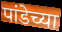
पांडेच्या